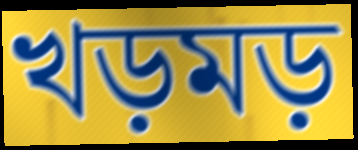
খড়মড়